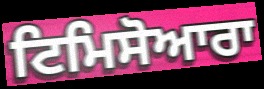
ਟਿਮਿਸੋਆਰਾ